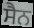
ਸੈਨ